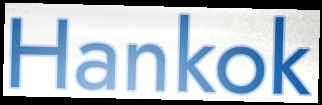
Hankok